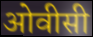
ओवीसी